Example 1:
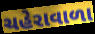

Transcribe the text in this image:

ચહેરાવાળા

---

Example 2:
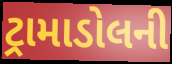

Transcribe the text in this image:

ટ્રામાડોલની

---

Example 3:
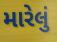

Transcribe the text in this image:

મારેલું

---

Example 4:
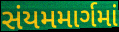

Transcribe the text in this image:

સંયમમાર્ગમાં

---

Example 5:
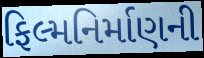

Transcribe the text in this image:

ફિલ્મનિર્માણની